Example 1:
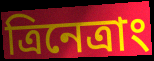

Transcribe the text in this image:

ত্রিনেত্রাং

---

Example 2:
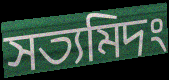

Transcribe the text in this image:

সত্যমিদং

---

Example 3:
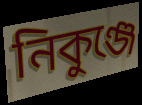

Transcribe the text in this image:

নিকুঞ্জে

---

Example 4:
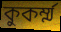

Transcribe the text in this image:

কুকর্ম্ম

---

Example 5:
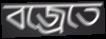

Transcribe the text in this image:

বজ্রেতে